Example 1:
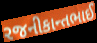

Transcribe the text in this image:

રજનીકાન્તભાઈ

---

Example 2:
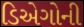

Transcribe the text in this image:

ડિએગોની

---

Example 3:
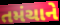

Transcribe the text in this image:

તમંચાને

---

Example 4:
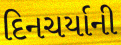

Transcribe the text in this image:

દિનચર્યાની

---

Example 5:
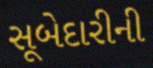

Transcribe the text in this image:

સૂબેદારીની